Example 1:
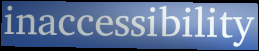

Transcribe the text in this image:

inaccessibility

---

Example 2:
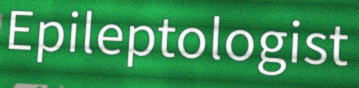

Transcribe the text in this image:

Epileptologist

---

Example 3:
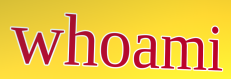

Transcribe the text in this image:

whoami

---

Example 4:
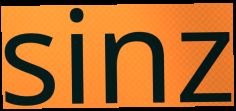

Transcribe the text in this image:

sinz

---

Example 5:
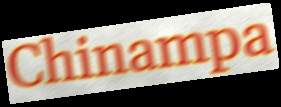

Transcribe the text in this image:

Chinampa